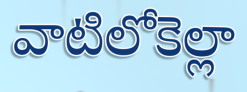
వాటిలోకెల్లా